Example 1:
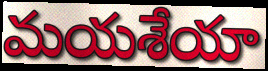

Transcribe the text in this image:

మయశేయా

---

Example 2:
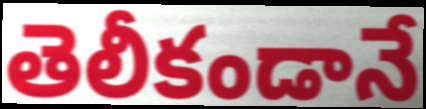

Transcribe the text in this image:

తెలీకండానే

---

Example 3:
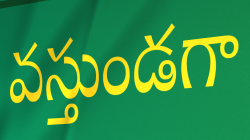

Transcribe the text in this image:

వస్తుండగా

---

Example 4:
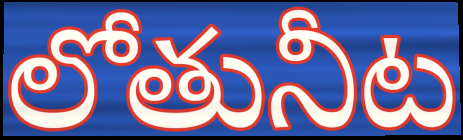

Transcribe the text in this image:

లోతునీట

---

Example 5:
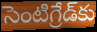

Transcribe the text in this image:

సెంటిగ్రేడ్‌కు